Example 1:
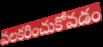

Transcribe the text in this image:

పలకరించుకోవడం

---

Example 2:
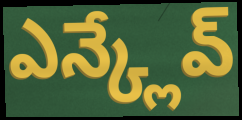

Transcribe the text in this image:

ఎన్క్లేవ్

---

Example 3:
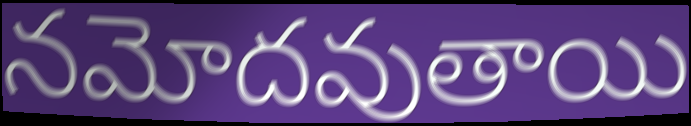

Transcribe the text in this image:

నమోదవుతాయి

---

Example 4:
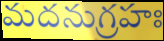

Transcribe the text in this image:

మదనుగ్రహః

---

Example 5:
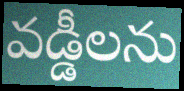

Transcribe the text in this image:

వడ్డీలను